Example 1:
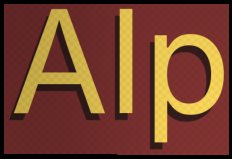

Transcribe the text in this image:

Alp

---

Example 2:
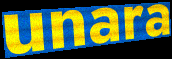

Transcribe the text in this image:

unara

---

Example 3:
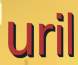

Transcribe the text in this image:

uril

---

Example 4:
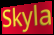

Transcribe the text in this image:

Skyla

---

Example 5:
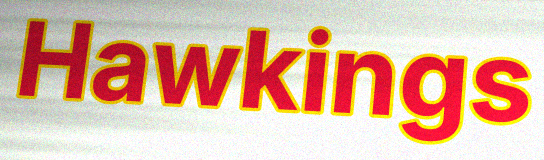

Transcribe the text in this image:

Hawkings